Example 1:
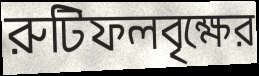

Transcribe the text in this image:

রুটিফলবৃক্ষের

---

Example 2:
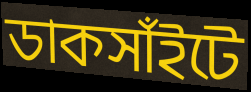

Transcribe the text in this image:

ডাকসাঁইটে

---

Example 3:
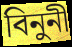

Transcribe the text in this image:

বিনুনী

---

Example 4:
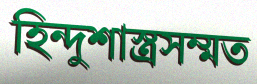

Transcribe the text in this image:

হিন্দুশাস্ত্রসম্মত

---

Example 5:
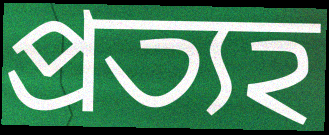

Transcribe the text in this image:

প্রত্যহ